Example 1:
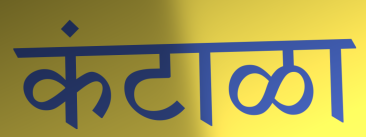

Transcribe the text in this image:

कंटाळा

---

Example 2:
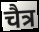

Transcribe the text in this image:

चैत्र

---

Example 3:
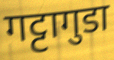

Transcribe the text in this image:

गट्टागुडा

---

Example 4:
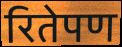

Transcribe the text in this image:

रितेपण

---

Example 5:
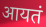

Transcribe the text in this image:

आयतं